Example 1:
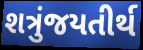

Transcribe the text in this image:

શત્રુંજયતીર્થ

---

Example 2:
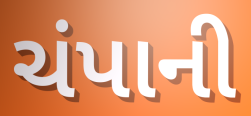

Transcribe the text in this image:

ચંપાની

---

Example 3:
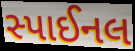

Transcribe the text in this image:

સ્પાઈનલ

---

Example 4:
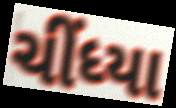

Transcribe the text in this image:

ચીંધ્યા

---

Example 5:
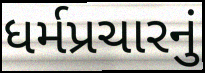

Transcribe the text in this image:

ધર્મપ્રચારનું